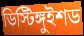
ডিস্টিঙ্গুইশড